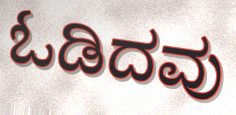
ಓಡಿದವು